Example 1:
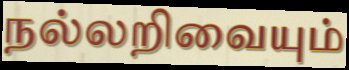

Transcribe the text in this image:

நல்லறிவையும்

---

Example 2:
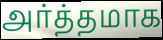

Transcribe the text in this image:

அர்த்தமாக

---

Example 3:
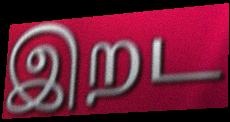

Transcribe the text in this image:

இறட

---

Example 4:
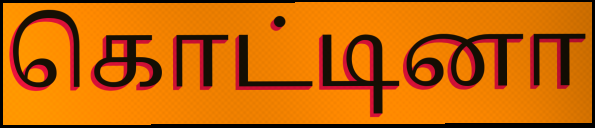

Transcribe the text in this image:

கொட்டினா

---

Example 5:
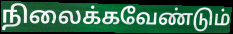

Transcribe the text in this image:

நிலைக்கவேண்டும்